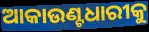
ଆକାଉଣ୍ଟଧାରୀକୁ